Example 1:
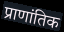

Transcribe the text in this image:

प्राणांतिक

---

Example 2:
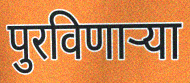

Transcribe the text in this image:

पुरविणार्‍या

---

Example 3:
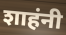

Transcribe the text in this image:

शाहंनी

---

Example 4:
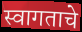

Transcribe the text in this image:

स्वागताचे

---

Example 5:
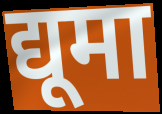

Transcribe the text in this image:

द्यूमा